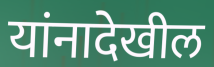
यांनादेखील